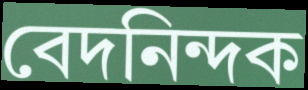
বেদনিন্দক